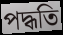
পদ্ধতি